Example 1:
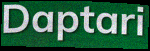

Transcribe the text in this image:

Daptari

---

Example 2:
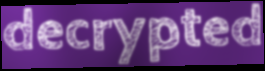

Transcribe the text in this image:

decrypted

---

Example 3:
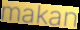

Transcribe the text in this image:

makan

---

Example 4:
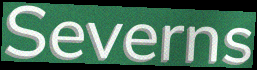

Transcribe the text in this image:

Severns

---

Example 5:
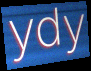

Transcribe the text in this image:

ydy